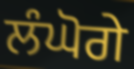
ਲੰਘੋਗੇ